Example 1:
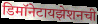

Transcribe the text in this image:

डिमॉनेटायझेशनची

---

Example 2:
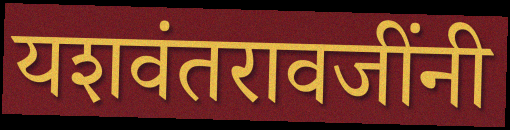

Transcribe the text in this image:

यशवंतरावजींनी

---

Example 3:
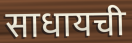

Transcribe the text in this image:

साधायची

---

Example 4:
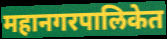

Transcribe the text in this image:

महानगरपालिकेत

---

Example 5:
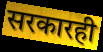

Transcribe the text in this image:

सरकारही